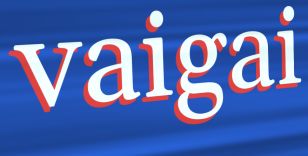
vaigai